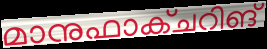
മാനുഫാക്ചറിങ്